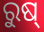
ରୁଷ୍